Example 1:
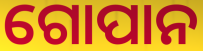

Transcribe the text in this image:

ଗୋପାନ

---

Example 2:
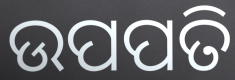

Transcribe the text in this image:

ଉପପତି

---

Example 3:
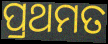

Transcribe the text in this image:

ପ୍ରଥମତ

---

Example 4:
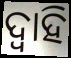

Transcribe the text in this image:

ଦ୍ଵାହି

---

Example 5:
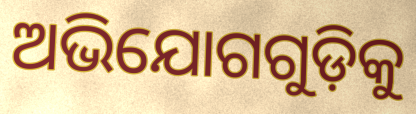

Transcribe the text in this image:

ଅଭିଯୋଗଗୁଡ଼ିକୁ